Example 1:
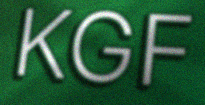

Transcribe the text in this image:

KGF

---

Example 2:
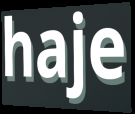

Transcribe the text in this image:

haje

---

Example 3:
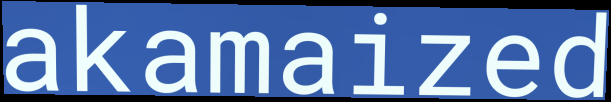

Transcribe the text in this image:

akamaized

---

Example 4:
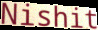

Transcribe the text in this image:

Nishit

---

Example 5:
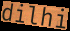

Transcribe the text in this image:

dilhi